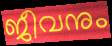
ജീവനും